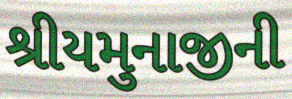
શ્રીયમુનાજીની